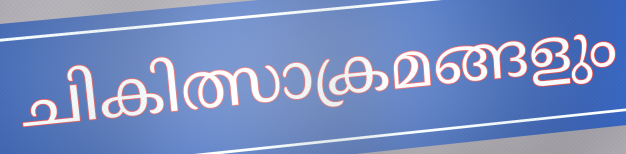
ചികിത്സാക്രമങ്ങളും